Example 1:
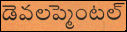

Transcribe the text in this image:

డెవలప్మెంటల్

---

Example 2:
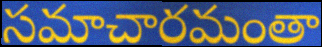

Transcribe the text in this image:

సమాచారమంతా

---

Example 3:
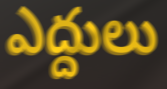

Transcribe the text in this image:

ఎద్దులు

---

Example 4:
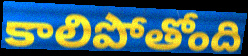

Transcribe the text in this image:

కాలిపోతోంది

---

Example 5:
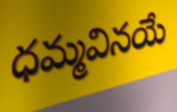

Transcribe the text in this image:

ధమ్మవినయే